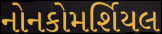
નોનકોમર્શિયલ